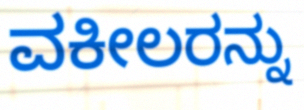
ವಕೀಲರನ್ನು